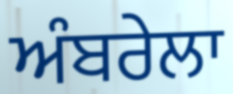
ਅੰਬਰੇਲਾ